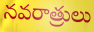
నవరాత్రులు